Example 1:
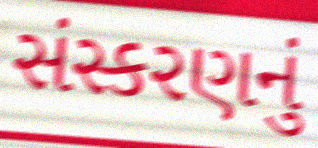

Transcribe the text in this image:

સંસ્કરણનું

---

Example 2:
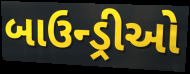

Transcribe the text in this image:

બાઉન્ડ્રીઓ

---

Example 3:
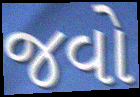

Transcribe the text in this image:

જવો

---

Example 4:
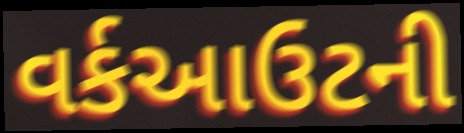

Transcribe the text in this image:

વર્કઆઉટની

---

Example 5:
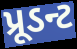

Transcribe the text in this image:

પ્રૂડન્ટ